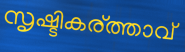
സൃഷ്ടികര്ത്താവ്